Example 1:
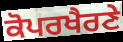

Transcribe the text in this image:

ਕੋਪਰਖੈਰਣੇ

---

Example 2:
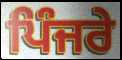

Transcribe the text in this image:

ਪਿੰਜਰੇ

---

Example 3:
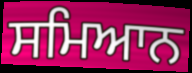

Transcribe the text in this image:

ਸਮਿਆਨ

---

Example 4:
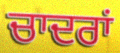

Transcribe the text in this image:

ਚਾਦਰਾਂ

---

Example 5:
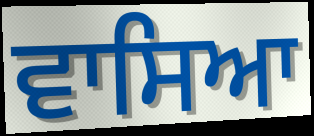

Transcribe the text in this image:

ਵਾਸਿਆ